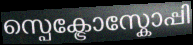
സ്പെക്ട്രോസ്കോപ്പി